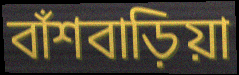
বাঁশবাড়িয়া